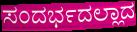
ಸಂದರ್ಭದಲ್ಲಾದ